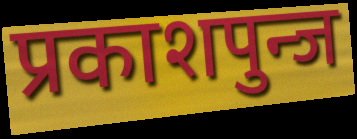
प्रकाशपुन्ज